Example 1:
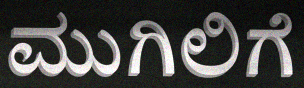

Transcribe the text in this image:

ಮುಗಿಲಿಗೆ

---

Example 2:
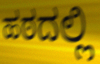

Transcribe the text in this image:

ಹಠದಲ್ಲಿ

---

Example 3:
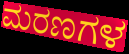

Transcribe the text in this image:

ಮರಣಗಳ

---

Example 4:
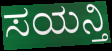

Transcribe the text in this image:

ಸಯನ್ತಿ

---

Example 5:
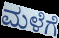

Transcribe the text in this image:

ಮಳೆಗೆ